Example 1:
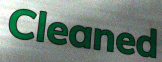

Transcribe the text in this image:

Cleaned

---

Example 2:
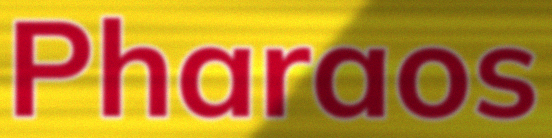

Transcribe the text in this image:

Pharaos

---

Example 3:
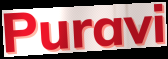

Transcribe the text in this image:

Puravi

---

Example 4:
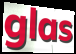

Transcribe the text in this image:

glas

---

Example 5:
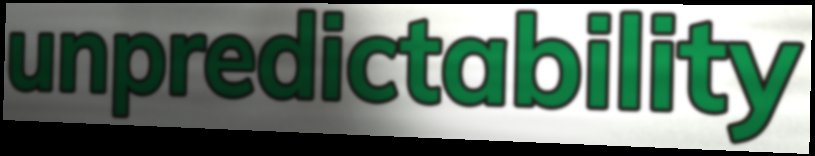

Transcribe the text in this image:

unpredictability